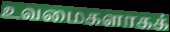
உவமைகளாகக்